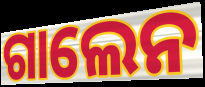
ଗାଲେନ